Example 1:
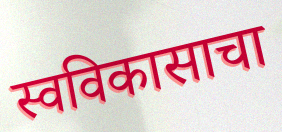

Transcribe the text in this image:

स्वविकासाचा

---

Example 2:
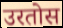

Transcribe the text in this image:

उरतोस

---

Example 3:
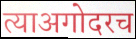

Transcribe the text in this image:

त्याअगोदरच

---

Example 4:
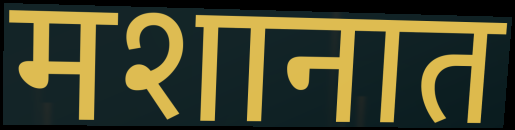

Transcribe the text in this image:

मशानात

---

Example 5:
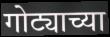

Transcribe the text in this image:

गोट्याच्या